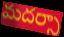
మదర్సా